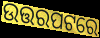
ଉତ୍ତରପଟରେ